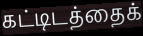
கட்டிடத்தைக்